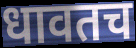
धावतच